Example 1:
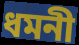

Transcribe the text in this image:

ধমনী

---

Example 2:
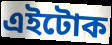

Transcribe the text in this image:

এইটোক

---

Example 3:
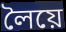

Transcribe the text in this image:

লৈয়ে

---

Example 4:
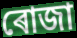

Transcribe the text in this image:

ৰোজা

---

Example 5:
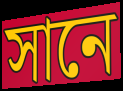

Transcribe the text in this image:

সানে